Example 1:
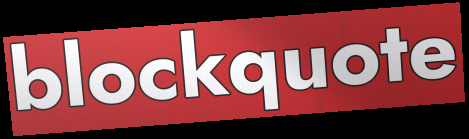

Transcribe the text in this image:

blockquote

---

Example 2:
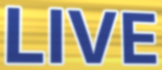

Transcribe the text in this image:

LIVE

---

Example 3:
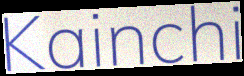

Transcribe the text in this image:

Kainchi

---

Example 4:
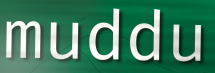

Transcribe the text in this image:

muddu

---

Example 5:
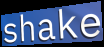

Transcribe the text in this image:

shake